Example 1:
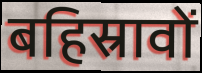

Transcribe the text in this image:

बहिस्रावों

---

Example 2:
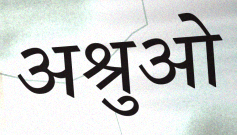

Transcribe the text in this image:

अश्रुओ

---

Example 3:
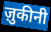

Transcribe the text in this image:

ज़ुकीनी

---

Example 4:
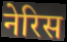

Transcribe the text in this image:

नेरिस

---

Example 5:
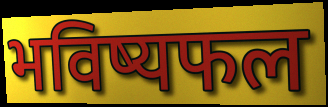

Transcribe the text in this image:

भविष्यफल